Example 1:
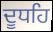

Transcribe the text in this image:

ਦੂਧਹਿ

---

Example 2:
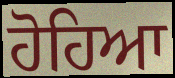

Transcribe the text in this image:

ਹੋਹਿਆ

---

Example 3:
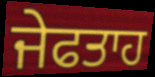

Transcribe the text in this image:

ਜੇਫਤਾਹ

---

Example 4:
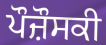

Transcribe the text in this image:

ਪੌਜ਼ੌਸਕੀ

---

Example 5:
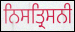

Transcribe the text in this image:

ਨਿਸਤ੍ਰਿਸਨੀ